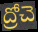
ద్రోచె